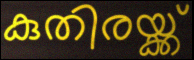
കുതിരയ്ക്ക്